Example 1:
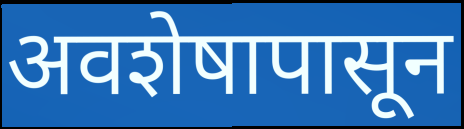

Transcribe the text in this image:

अवशेषापासून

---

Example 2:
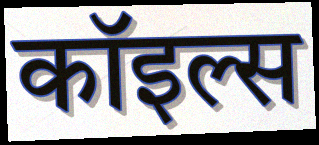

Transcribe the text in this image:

कॉइल्स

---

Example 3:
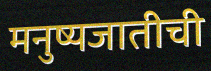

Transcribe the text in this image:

मनुष्यजातीची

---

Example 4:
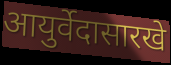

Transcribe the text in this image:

आयुर्वेदासारखे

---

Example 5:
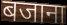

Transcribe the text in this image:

बजाना